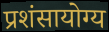
प्रशंसायोग्य